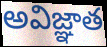
అవిజ్ఞాత